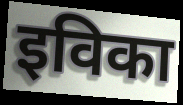
इविका